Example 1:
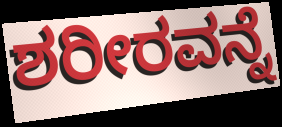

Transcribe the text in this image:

ಶರೀರವನ್ನೆ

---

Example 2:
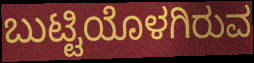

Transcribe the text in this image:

ಬುಟ್ಟಿಯೊಳಗಿರುವ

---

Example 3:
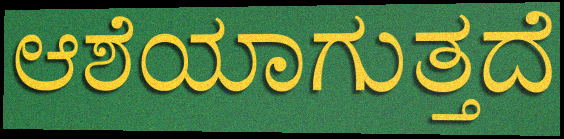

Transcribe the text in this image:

ಆಶೆಯಾಗುತ್ತದೆ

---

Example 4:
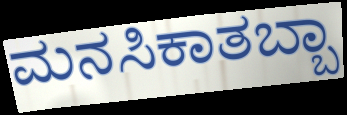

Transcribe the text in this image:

ಮನಸಿಕಾತಬ್ಬಾ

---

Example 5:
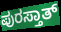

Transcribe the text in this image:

ಪುರಸ್ತಾತ್